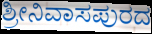
ಶ್ರೀನಿವಾಸಪುರದ